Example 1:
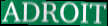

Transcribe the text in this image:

ADROIT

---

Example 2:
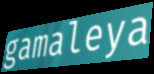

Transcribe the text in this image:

gamaleya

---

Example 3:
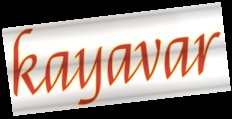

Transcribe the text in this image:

kayavar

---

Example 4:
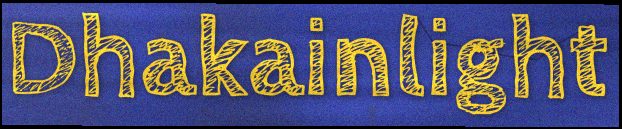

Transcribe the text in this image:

Dhakainlight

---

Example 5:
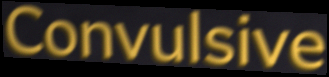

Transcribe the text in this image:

Convulsive